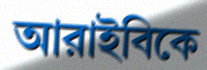
আরাইবিকে